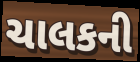
ચાલકની